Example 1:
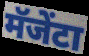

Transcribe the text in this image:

मॅजेंटा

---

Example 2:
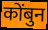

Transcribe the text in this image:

कोंबुन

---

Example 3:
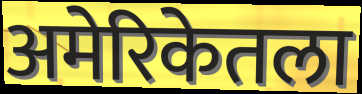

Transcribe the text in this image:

अमेरिकेतला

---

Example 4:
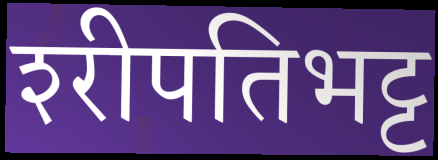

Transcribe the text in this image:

श्रीपतिभट्ट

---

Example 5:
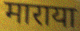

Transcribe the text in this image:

माराया